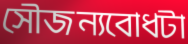
সৌজন্যবোধটা